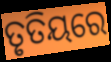
ତୃତିୟରେ